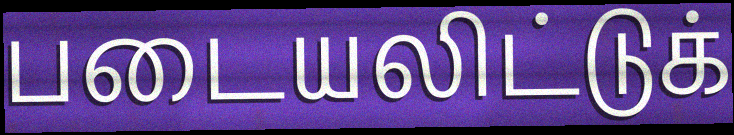
படையலிட்டுக்